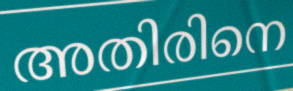
അതിരിനെ